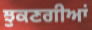
ਝੁਕਣਗੀਆਂ